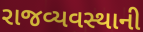
રાજવ્યવસ્થાની